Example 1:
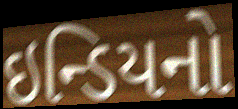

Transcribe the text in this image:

ઇન્ડિયનો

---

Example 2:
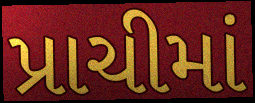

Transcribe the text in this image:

પ્રાચીમાં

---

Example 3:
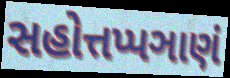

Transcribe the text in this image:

સહોત્તપ્પઞાણં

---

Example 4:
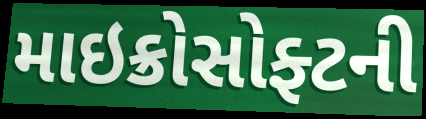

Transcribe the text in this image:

માઇક્રોસોફ્ટની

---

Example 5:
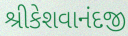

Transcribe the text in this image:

શ્રીકેશવાનંદજી